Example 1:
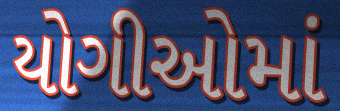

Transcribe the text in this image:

યોગીઓમાં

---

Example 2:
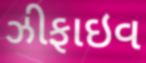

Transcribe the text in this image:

ઝીફાઇવ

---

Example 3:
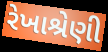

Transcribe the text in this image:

રેખાશ્રેણી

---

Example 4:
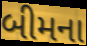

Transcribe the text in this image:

બીમના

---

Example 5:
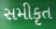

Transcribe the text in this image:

સમીકૃત